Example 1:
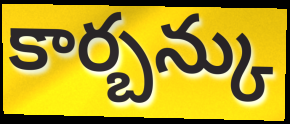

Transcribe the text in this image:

కార్బన్కు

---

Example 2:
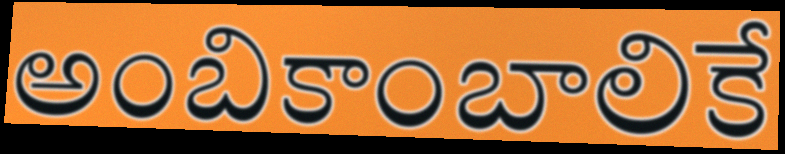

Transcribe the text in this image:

అంబికాంబాలికే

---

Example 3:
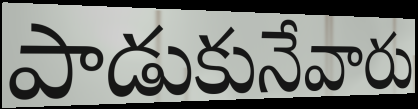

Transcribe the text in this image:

పాడుకునేవారు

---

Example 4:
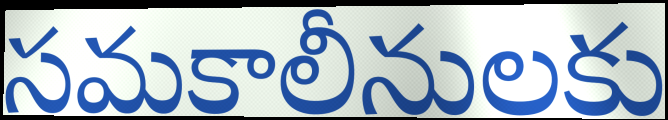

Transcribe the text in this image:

సమకాలీనులకు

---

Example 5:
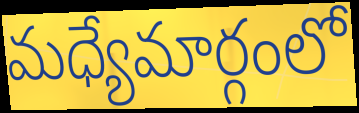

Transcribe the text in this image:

మధ్యేమార్గంలో